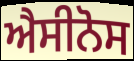
ਐਸੀਨੋਸ